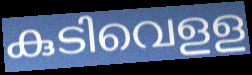
കുടിവെളള